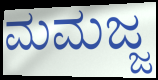
ಮಮಜ್ಜ